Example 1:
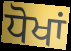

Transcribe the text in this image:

ਧੋਖਾਂ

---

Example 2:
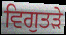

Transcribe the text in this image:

ਵਿਗੁਤੜੇ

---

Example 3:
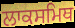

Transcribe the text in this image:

ਲਾਕਸਮਿਥ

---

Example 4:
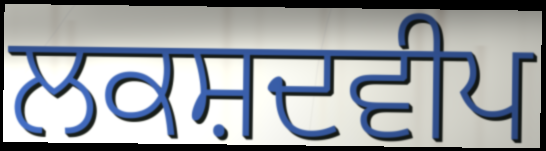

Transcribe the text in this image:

ਲਕਸ਼ਦਵੀਪ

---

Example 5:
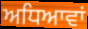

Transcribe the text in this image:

ਅਧਿਆਵਾਂ